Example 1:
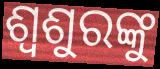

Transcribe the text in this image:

ଶ୍ୱଶୁରଙ୍କୁ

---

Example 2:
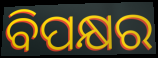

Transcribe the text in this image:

ବିପକ୍ଷର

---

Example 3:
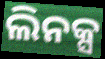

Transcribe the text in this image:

ଲିନକ୍ସ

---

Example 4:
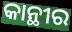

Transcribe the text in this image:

କାନ୍ଥୀର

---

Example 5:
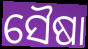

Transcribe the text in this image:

ସୈଷା